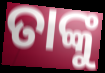
ତାଙ୍କୁ